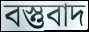
বস্তুবাদ